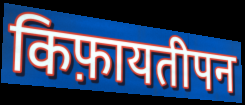
किफ़ायतीपन